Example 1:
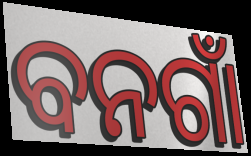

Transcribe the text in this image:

ବନଗାଁ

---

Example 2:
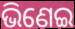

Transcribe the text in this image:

ଭିଣେଇ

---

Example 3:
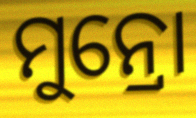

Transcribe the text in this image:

ମୁନ୍ରୋ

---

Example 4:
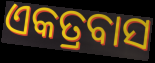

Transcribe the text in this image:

ଏକତ୍ରବାସ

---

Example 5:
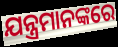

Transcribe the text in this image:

ଯନ୍ତ୍ରମାନଙ୍କରେ